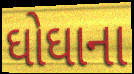
ઘોઘાના